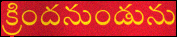
క్రిందనుండును